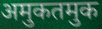
अमुकतमुक